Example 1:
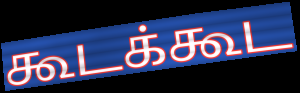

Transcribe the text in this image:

கூடக்கூட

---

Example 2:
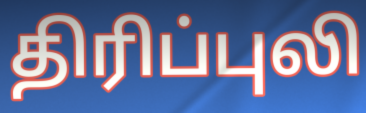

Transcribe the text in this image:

திரிப்புலி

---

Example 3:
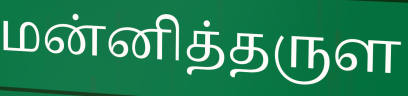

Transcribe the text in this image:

மன்னித்தருள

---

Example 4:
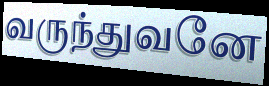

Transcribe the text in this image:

வருந்துவனே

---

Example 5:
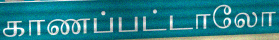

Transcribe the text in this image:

காணப்பட்டாலோ